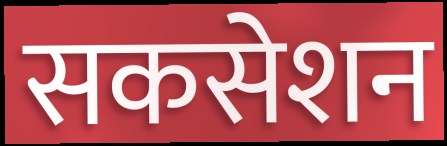
सकसेशन